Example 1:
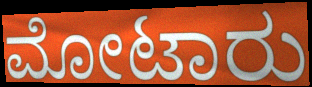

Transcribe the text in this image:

ಮೋಟಾರು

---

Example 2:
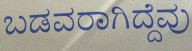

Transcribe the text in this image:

ಬಡವರಾಗಿದ್ದೆವು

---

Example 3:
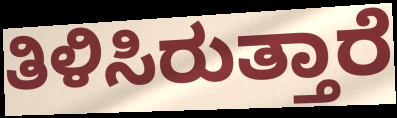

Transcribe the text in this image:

ತಿಳಿಸಿರುತ್ತಾರೆ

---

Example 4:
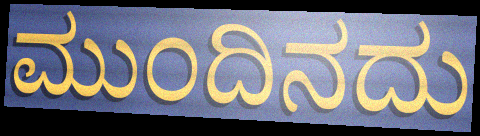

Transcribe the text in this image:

ಮುಂದಿನದು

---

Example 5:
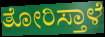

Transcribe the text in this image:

ತೋರಿಸ್ತಾಳೆ